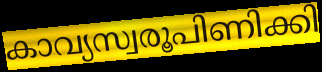
കാവ്യസ്വരൂപിണിക്കി